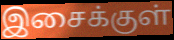
இசைக்குள்